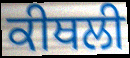
ਕੀਥਲੀ